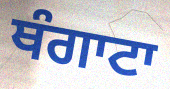
ਥੰਗਾਟਾ